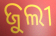
ଜୁଲୀ